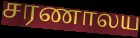
சரணாலய